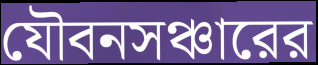
যৌবনসঞ্চারের